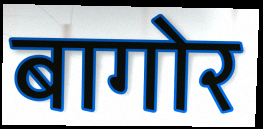
बागोर